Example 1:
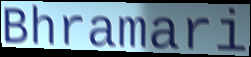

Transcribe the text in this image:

Bhramari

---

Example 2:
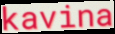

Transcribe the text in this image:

kavina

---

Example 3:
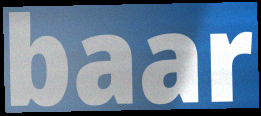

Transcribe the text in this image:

baar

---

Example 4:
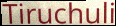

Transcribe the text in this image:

Tiruchuli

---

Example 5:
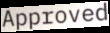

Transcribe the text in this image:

Approved